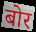
बोर